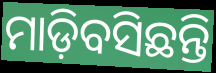
ମାଡ଼ିବସିଛନ୍ତି